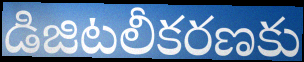
డిజిటలీకరణకు